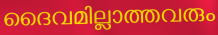
ദൈവമില്ലാത്തവരും